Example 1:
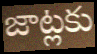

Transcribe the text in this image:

జాట్లకు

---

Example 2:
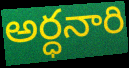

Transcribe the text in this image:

అర్ధనారి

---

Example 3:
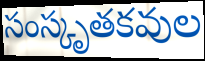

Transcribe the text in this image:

సంస్కృతకవుల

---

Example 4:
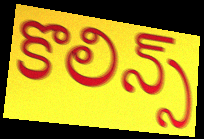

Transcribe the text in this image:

కొలిన్స్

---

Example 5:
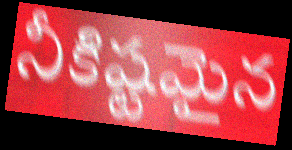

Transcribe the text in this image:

నీకిష్టమైన